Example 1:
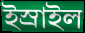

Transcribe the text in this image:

ইস্রাইল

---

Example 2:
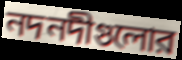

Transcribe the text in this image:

নদনদীগুলোর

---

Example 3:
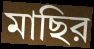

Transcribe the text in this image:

মাছির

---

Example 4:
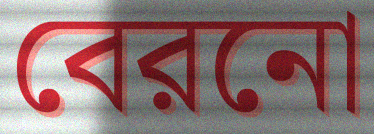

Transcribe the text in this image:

বেরনো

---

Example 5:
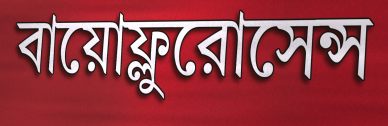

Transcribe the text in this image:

বায়োফ্লুরোসেন্স